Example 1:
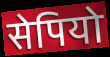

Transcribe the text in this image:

सेपियो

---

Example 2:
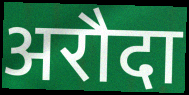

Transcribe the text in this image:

अरौदा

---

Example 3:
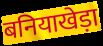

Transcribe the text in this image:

बनियाखेड़ा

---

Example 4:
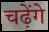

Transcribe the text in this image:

चढ़ेंगे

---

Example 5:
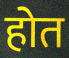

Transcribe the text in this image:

होत